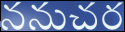
ననుచర